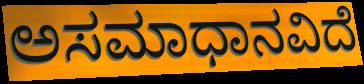
ಅಸಮಾಧಾನವಿದೆ